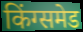
किंग्समेड